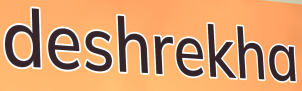
deshrekha